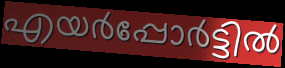
എയർപ്പോർട്ടിൽ